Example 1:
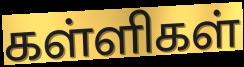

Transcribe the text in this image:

கள்ளிகள்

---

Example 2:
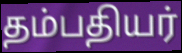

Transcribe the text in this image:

தம்பதியர்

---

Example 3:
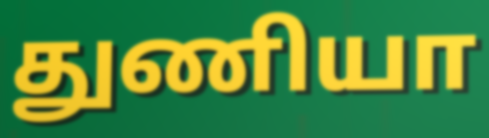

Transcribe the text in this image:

துணியா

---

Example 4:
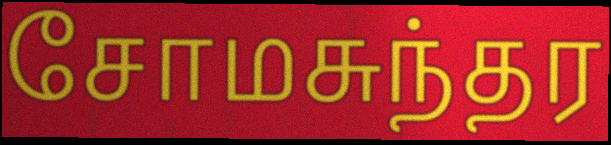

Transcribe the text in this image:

சோமசுந்தர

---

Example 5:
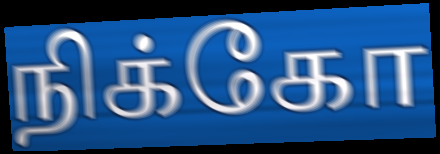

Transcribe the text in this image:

நிக்கோ